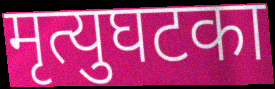
मृत्युघटका